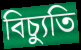
বিচ্যুতি